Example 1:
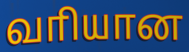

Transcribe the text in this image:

வரியான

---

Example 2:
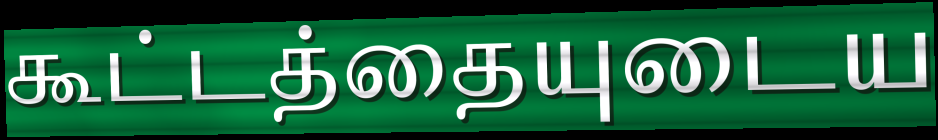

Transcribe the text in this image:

கூட்டத்தையுடைய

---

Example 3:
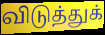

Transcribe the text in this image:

விடுத்துக்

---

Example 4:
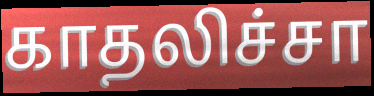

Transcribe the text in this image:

காதலிச்சா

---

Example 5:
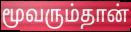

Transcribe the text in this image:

மூவரும்தான்